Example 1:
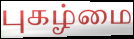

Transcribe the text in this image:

புகழ்மை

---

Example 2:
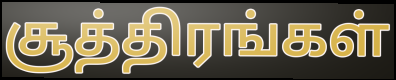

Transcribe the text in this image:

சூத்திரங்கள்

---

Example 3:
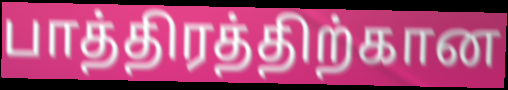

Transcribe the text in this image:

பாத்திரத்திற்கான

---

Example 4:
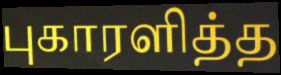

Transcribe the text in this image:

புகாரளித்த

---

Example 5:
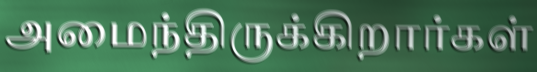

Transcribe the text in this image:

அமைந்திருக்கிறார்கள்